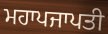
ਮਹਾਪਜਾਪਤੀ